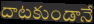
దాటకుండానే